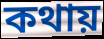
কথায়